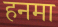
हनमा